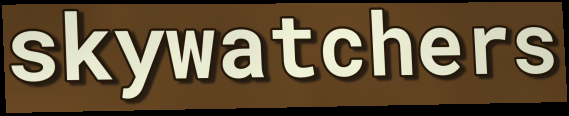
skywatchers